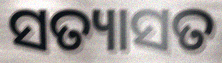
ସତ୍ୟାସତ